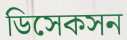
ডিসেকসন